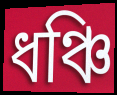
ধঞ্চি